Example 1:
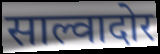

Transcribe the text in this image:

साल्वादोर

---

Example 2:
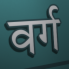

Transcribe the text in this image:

वर्ग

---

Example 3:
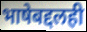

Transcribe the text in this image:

भाषेबद्दलही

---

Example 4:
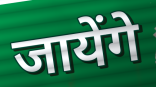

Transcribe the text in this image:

जायेंगे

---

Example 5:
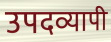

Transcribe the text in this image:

उपदव्यापी